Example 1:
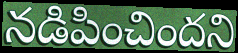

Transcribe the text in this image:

నడిపించిందని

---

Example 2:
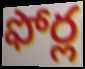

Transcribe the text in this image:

ఫోర్ల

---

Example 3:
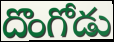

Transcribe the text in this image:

దొంగోడు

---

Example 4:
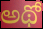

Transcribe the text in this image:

అథో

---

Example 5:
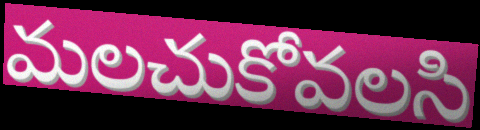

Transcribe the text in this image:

మలచుకోవలసి